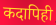
कदापिही